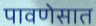
पावणेसात